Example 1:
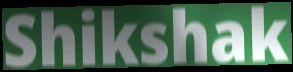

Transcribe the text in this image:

Shikshak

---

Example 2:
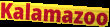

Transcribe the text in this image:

Kalamazoo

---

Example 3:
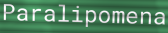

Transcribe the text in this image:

Paralipomena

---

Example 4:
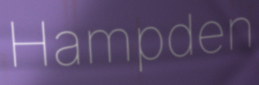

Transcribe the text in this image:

Hampden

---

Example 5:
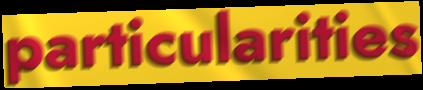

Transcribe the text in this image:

particularities